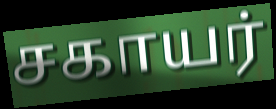
சகாயர்